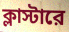
ক্লাস্টারে